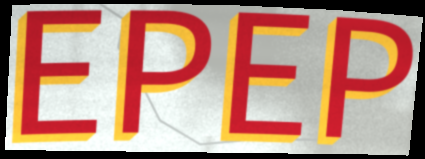
EPEP